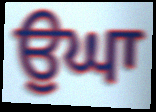
ਉਘਾ